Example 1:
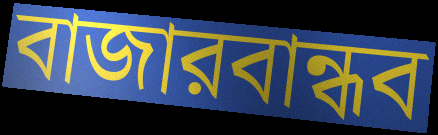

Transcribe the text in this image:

বাজারবান্ধব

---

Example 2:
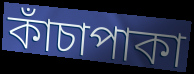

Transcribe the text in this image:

কাঁচাপাকা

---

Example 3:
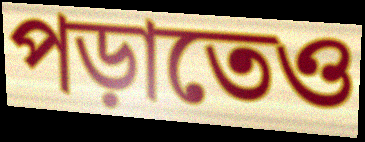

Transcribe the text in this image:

পড়াতেও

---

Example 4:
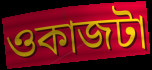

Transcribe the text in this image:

ওকাজটা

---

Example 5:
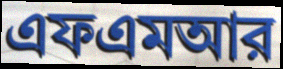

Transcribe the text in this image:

এফএমআর